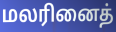
மலரினைத்